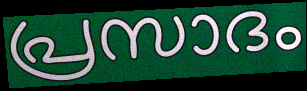
പ്രസാദം